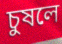
চুষলে